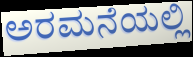
ಅರಮನೆಯಲ್ಲಿ